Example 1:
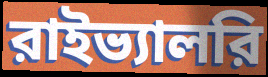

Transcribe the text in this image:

রাইভ্যালরি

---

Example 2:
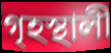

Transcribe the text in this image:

গৃহস্থালী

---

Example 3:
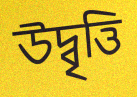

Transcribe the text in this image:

উদ্বৃত্তি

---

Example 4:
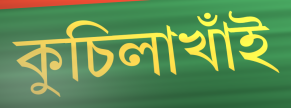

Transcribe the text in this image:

কুচিলাখাঁই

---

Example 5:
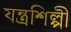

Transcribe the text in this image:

যন্ত্রশিল্পী